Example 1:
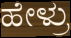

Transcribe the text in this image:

ಹೇಳ್ರು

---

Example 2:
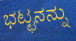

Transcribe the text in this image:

ಭಟ್ಟನನ್ನು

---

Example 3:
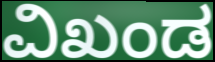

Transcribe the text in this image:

ವಿಖಂಡ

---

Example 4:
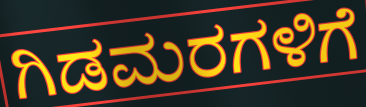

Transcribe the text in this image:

ಗಿಡಮರಗಳಿಗೆ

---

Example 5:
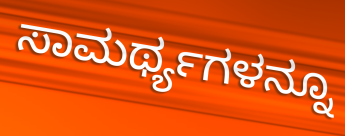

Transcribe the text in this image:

ಸಾಮರ್ಥ್ಯಗಳನ್ನೂ